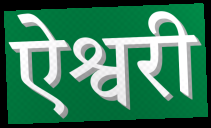
ऐश्वरी